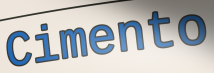
Cimento